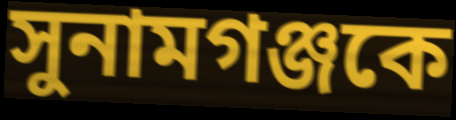
সুনামগঞ্জকে